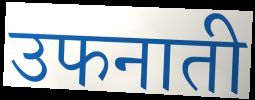
उफनाती